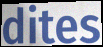
dites